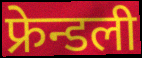
फ्रेन्डली